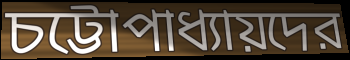
চট্টোপাধ্যায়দের